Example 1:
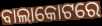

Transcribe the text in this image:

ବାଲାକୋଟରେ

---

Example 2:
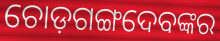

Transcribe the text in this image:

ଚୋଡ଼ଗଙ୍ଗଦେବଙ୍କର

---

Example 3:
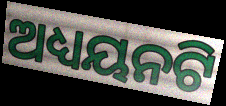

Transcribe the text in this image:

ଅଧ୍ୟୟନଟି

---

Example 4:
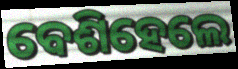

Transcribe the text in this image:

ବେଶିହେଲେ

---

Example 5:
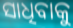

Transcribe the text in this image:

ସାଧିବାକୁ